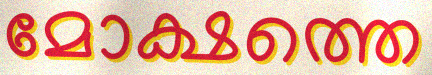
മോക്ഷത്തെ